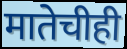
मातेचीही